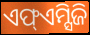
ଏଫ୍ଏମ୍ସିଜି